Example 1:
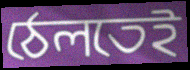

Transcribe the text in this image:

ঠেলতেই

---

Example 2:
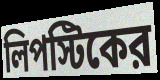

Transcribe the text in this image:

লিপস্টিকের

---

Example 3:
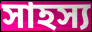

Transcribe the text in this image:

সাহস্য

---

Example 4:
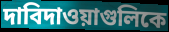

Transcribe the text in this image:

দাবিদাওয়াগুলিকে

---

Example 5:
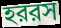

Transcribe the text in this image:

হররস